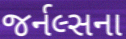
જર્નલ્સના